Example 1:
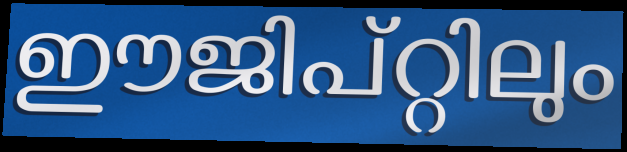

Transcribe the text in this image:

ഈജിപ്റ്റിലും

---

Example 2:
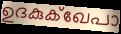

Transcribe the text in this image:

ഉദകുക്ഖേപാ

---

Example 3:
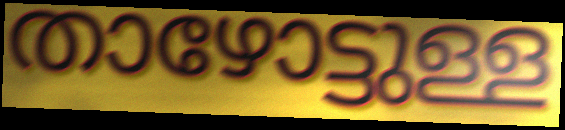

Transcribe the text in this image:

താഴോട്ടുള്ള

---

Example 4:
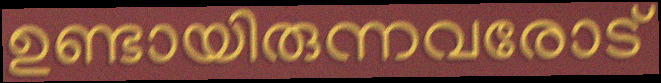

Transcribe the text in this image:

ഉണ്ടായിരുന്നവരോട്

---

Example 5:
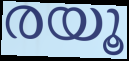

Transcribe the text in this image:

രയൂ